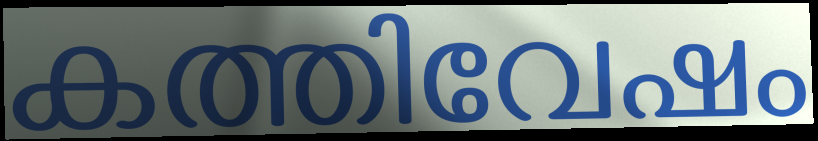
കത്തിവേഷം